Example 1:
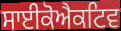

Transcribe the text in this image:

ਸਾਈਕੋਐਕਟਿਵ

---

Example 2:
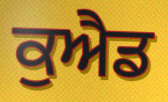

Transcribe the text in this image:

ਕੁਐਡ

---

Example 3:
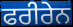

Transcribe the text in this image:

ਫਰੀਰੇਨ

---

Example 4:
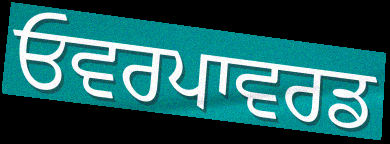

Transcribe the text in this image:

ਓਵਰਪਾਵਰਡ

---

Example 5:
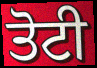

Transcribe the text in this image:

ਤੋਟੀ